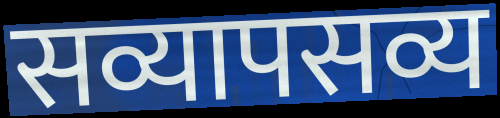
सव्यापसव्य